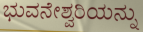
ಭುವನೇಶ್ವರಿಯನ್ನು